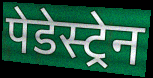
पेडेस्ट्रेन